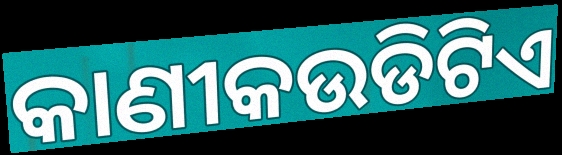
କାଣୀକଉଡିଟିଏ